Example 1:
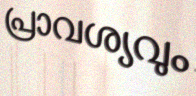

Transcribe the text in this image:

പ്രാവശ്യവും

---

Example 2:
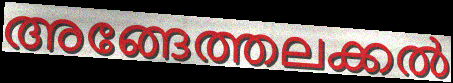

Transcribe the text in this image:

അങ്ങേത്തലക്കൽ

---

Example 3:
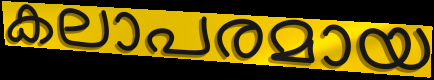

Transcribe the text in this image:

കലാപരമായ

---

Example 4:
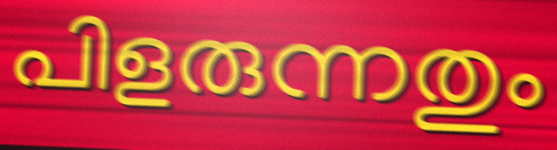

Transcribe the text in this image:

പിളരുന്നതും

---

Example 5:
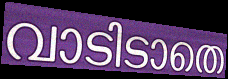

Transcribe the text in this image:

വാടിടാതെ